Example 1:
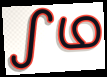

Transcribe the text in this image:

ഽഥ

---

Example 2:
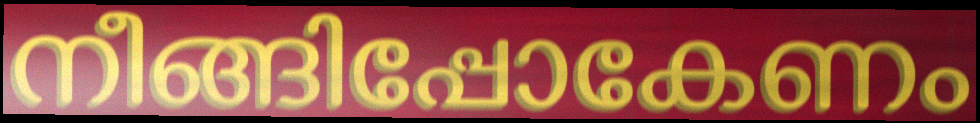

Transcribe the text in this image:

നീങ്ങിപ്പോകേണം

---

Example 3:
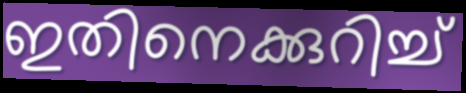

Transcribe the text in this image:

ഇതിനെക്കുറിച്ച്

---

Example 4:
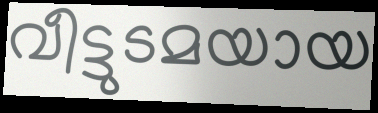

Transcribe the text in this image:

വീട്ടുടമയായ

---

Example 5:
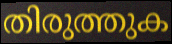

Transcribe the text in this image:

തിരുത്തുക